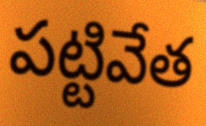
పట్టివేత